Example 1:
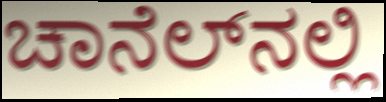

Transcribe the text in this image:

ಚಾನೆಲ್‌ನಲ್ಲಿ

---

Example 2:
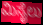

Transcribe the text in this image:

ಮಿಸೈಲು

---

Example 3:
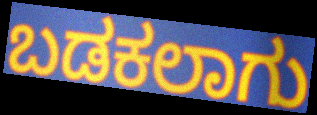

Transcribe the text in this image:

ಬಡಕಲಾಗು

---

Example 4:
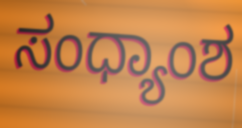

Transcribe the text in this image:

ಸಂಧ್ಯಾಂಶ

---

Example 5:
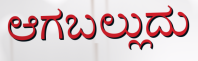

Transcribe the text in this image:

ಆಗಬಲ್ಲುದು